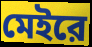
মেইরে